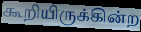
கூறியிருக்கின்ற